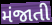
મંજાતી